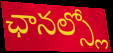
ఛానల్స్లో